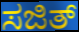
ಸಜಿತ್